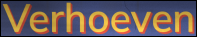
Verhoeven